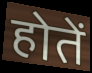
होतें